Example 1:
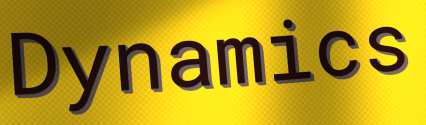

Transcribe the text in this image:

Dynamics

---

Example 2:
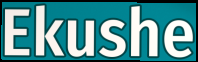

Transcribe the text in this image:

Ekushe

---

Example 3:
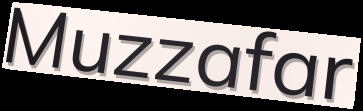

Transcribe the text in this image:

Muzzafar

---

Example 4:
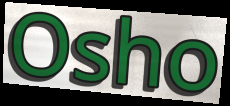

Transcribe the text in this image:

Osho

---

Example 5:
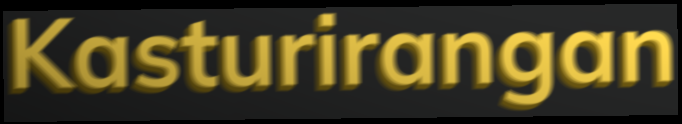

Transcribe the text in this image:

Kasturirangan